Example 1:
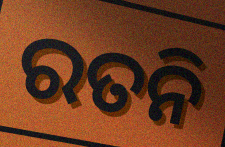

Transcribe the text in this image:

ରତନି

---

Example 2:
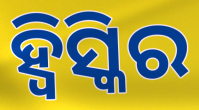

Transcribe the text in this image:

ହ୍ୱିସ୍କିର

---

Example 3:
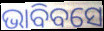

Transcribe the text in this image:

ଭାବିବସେ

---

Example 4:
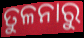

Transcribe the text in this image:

ତୁଳନାରୁ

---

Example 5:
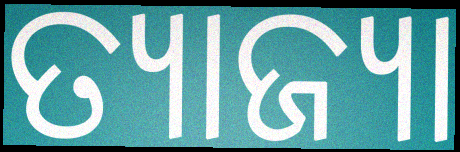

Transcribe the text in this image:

ତ୍ଯାଜ୍ୟା